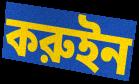
করুইন